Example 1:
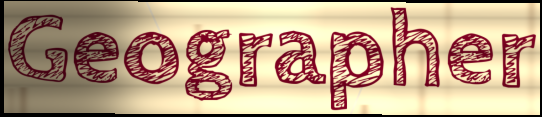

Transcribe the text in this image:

Geographer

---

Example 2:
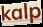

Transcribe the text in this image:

kalp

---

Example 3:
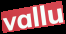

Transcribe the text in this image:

vallu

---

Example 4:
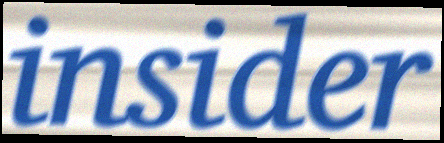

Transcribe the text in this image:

insider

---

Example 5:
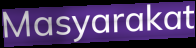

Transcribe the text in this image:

Masyarakat